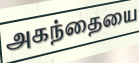
அகந்தையை